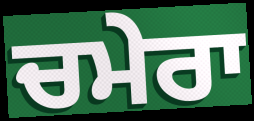
ਚਮੇਰਾ